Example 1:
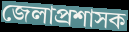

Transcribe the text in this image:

জেলাপ্রশাসক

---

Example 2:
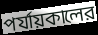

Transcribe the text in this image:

পর্যায়কালের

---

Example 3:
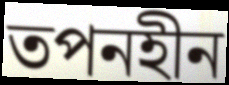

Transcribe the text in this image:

তপনহীন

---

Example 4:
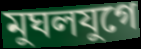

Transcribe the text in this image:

মুঘলযুগে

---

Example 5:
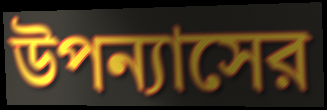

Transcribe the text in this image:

উপন্যাসের